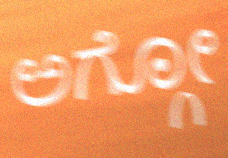
ಅಗ್ಗೋ